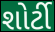
શોર્ટી